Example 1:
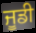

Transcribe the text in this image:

ਜੂਡੀ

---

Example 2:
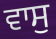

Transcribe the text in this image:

ਵਾਸੁ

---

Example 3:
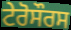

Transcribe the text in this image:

ਟੇਰੋਸੌਰਸ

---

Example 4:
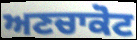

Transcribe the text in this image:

ਅਣਚਾਕੋਟ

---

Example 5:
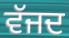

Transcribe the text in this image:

ਵੱਜਦ